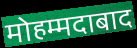
मोहम्मदाबाद